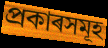
প্ৰকাৰসমূহ